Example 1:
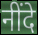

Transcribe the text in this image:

नींदे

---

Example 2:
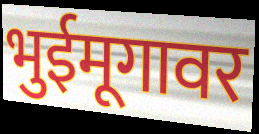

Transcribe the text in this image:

भुईमूगावर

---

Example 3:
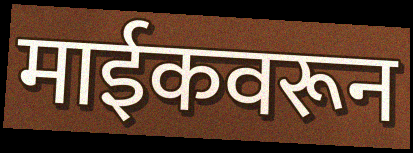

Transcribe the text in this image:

माईकवरून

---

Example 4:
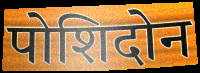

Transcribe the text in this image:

पोशिदोन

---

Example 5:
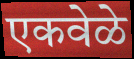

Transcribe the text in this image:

एकवेळे